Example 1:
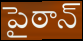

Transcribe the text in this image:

పైఠాన్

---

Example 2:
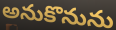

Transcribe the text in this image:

అనుకొనును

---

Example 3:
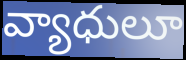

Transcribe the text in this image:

వ్యాధులూ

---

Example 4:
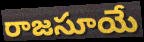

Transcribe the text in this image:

రాజసూయే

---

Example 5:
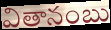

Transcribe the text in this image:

వితానంబు